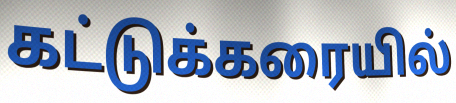
கட்டுக்கரையில்